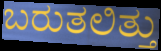
ಬರುತಲಿತ್ತು